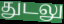
துடலு